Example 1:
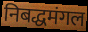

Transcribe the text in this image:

निबद्धमंगल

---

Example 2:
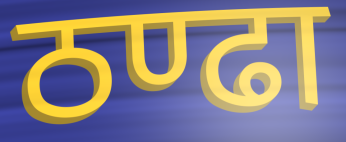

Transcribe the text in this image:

ठण्ढा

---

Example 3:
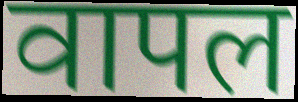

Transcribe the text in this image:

वापल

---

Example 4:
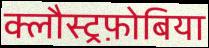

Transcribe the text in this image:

क्लौस्ट्रफ़ोबिया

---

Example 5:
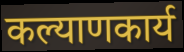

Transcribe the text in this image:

कल्याणकार्य